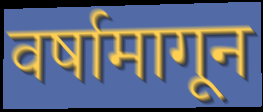
वर्षामागून